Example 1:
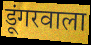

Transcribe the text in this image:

डूंगरवाला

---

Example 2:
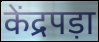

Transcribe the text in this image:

केंद्रपड़ा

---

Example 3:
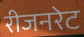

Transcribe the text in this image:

रीजनरेट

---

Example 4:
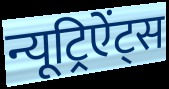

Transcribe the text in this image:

न्यूट्रिऐंट्स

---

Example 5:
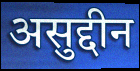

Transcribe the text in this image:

असुद्दीन